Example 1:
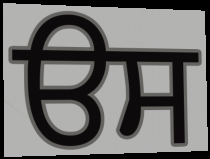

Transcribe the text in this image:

ੳਸ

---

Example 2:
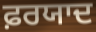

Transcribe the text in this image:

ਫ਼ਰਯਾਦ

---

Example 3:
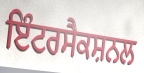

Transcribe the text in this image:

ਇੰਟਰਸੈਕਸ਼ਨਲ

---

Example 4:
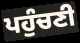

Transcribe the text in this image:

ਪਹੁੰਚਣੀ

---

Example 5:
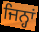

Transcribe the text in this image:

ਜਿਨ੍ਹਾਂ